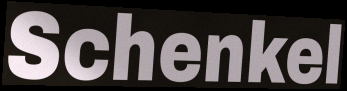
Schenkel